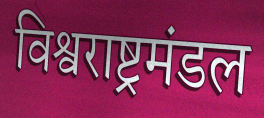
विश्वराष्ट्रमंडल